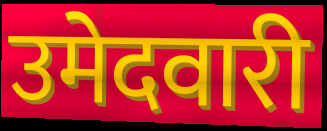
उमेदवारी